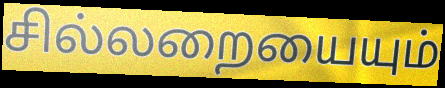
சில்லறையையும்